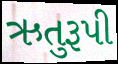
ઋતુરૂપી